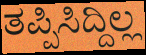
ತಪ್ಪಿಸಿದ್ದಿಲ್ಲ